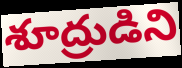
శూద్రుడిని